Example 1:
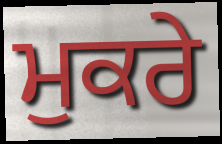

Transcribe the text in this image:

ਮੁਕਰੇ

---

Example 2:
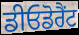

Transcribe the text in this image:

ਡੀਓਡੋਰੈਂਟ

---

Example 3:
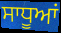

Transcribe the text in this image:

ਸਾਧੂਆਂ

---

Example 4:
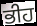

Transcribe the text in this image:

ਭੀਹ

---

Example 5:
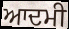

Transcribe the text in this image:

ਆਦਮੀ